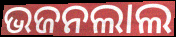
ଭଜନଲାଲ